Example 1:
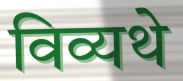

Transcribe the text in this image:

विव्यथे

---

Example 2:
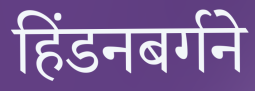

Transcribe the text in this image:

हिंडनबर्गने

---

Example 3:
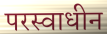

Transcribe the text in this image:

परस्वाधीन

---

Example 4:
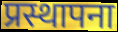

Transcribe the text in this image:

प्रस्थापना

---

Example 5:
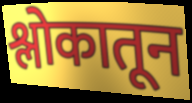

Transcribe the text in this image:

श्लोकातून